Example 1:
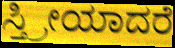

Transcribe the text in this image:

ಸ್ತ್ರೀಯಾದರೆ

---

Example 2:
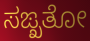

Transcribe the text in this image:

ಸಙ್ಖತೋ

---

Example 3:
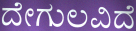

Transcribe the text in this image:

ದೇಗುಲವಿದೆ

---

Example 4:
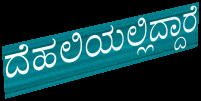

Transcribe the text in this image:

ದೆಹಲಿಯಲ್ಲಿದ್ದಾರೆ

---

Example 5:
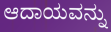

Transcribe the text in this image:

ಆದಾಯವನ್ನು